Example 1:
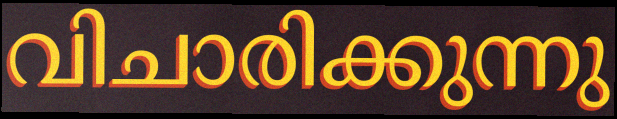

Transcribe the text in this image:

വിചാരിക്കുന്നു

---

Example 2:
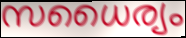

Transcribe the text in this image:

സധൈര്യം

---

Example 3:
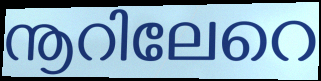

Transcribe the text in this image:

നൂറിലേറെ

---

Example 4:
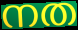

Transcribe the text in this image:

നത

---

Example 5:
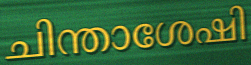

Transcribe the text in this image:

ചിന്താശേഷി